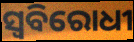
ସ୍ୱବିରୋଧୀ